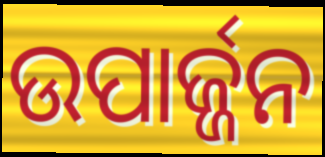
ଉପାର୍ଜ୍ଜନ